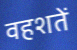
वहशतें